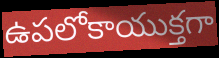
ఉపలోకాయుక్తగా